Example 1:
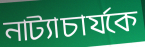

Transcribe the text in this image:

নাট্যাচার্যকে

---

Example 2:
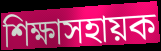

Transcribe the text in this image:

শিক্ষাসহায়ক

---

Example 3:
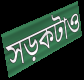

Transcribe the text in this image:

সড়কটাও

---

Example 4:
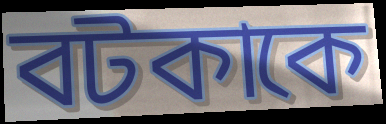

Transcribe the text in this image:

বটকাকে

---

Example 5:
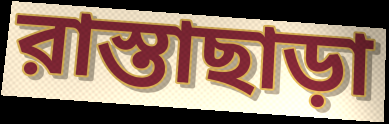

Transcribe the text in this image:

রাস্তাছাড়া